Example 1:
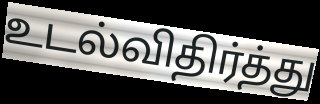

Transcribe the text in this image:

உடல்விதிர்த்து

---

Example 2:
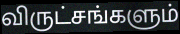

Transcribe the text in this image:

விருட்சங்களும்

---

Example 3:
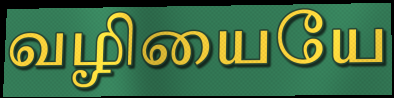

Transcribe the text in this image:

வழியையே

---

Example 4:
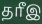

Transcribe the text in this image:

தரீஇ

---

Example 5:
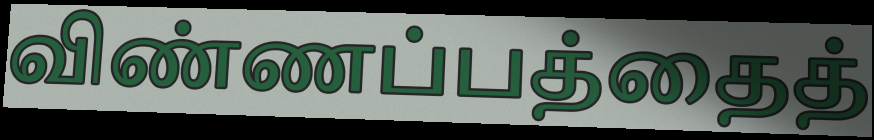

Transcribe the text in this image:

விண்ணப்பத்தைத்